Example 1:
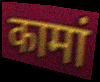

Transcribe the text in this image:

कामां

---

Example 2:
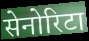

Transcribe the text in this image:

सेनोरिटा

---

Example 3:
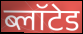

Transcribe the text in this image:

ब्लॉटेड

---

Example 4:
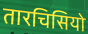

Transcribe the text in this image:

तारचिसियो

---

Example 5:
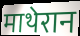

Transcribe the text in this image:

माथेरान